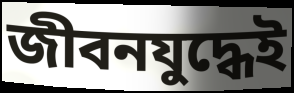
জীবনযুদ্ধেই